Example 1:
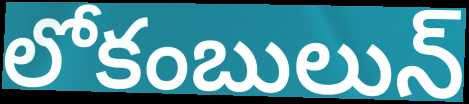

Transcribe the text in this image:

లోకంబులున్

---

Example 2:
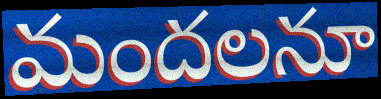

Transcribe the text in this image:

మందలనూ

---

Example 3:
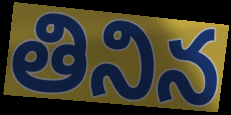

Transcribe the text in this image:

తినిన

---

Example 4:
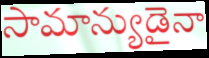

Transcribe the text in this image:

సామాన్యుడైనా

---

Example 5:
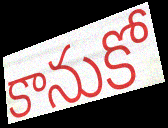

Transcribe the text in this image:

కానుకో